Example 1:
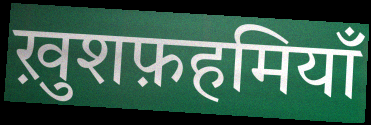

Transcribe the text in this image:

ख़ुशफ़हमियाँ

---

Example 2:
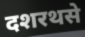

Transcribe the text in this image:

दशरथसे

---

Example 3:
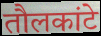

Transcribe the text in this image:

तौलकांटे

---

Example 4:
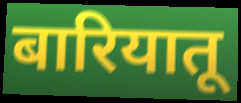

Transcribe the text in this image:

बारियातू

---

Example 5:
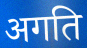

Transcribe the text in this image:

अगति